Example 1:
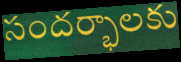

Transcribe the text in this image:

సందర్భాలకు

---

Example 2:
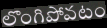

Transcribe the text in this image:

లొంగిపోవటం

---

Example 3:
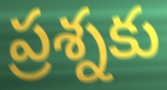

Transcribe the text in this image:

ప్రశ్నకు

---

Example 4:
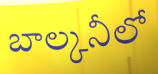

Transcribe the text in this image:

బాల్కనీలో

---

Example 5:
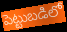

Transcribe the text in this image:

పెట్టుబడిలో